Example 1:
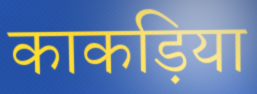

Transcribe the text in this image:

काकड़िया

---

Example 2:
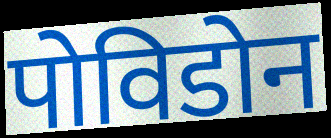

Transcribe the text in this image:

पोविडोन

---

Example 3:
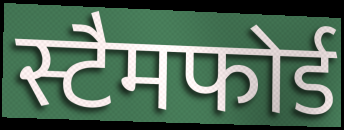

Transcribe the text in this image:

स्टैमफोर्ड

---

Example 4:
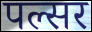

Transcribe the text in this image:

पल्सर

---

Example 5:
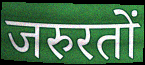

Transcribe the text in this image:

जरुरतों